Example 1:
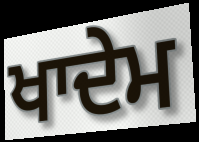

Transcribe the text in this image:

ਖਾਦੇਮ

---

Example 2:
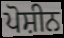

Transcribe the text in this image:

ਪੋਸ਼ੀਨ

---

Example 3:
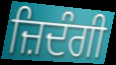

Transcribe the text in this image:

ਜ਼ਿਦੰਗੀ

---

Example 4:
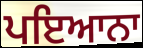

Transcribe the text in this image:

ਪਇਆਨਾ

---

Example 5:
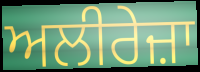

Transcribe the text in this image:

ਅਲੀਰੇਜ਼ਾ